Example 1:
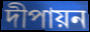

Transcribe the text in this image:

দীপায়ন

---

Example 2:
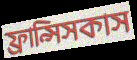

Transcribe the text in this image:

ফ্রান্সিসকাস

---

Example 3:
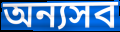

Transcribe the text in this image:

অন্যসব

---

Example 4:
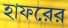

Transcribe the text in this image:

হাফরের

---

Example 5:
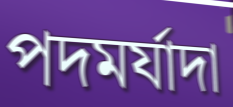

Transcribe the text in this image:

পদমর্যাদা